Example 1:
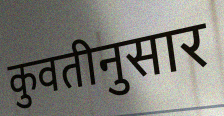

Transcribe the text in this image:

कुवतीनुसार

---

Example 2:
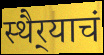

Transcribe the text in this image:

स्थैर्याचं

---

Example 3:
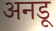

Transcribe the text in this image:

अनडू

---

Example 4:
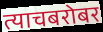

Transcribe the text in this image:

त्‍याचबरोबर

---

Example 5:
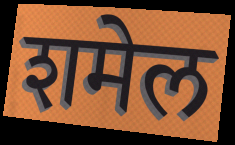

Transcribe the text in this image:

शमेल